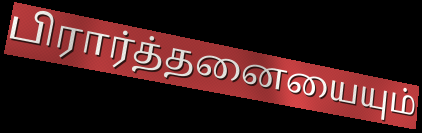
பிரார்த்தனையையும்